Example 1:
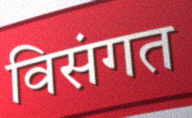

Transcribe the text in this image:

विसंगत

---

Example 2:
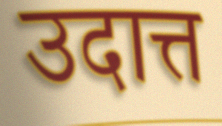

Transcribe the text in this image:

उदात्त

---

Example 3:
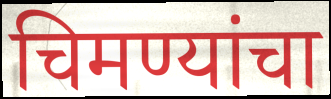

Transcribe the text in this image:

चिमण्यांचा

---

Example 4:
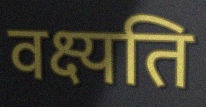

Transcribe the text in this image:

वक्ष्यति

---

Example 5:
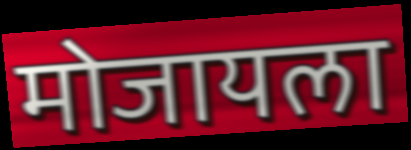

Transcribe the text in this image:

मोजायला